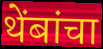
थेंबांचा